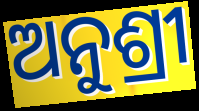
ଅନୁଶ୍ରୀ